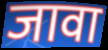
जावा